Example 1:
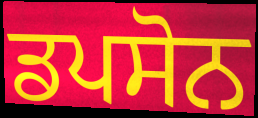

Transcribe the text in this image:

ਡਪਸੋਨ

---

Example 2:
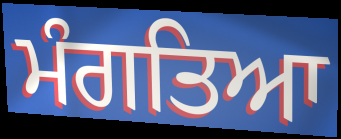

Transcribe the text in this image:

ਮੰਗਤਿਆ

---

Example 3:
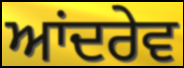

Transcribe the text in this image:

ਆਂਦਰੇਵ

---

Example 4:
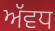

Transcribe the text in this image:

ਅੱਵਧ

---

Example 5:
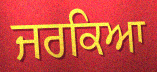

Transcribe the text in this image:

ਜਰਕਿਆ